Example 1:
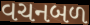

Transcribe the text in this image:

વચનબળ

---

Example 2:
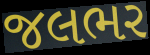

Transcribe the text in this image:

જલભર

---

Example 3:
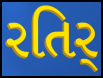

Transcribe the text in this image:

રતિર્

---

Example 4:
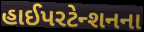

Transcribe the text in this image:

હાઈપરટેન્શનના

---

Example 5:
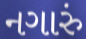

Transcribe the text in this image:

નગારું